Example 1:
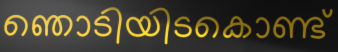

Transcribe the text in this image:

ഞൊടിയിടകൊണ്ട്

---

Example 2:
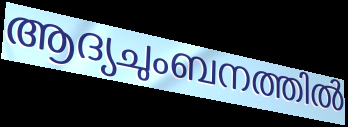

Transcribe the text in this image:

ആദ്യചുംബനത്തിൽ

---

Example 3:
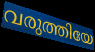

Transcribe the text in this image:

വരുത്തിയേ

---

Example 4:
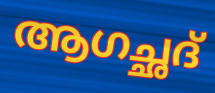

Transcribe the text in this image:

ആഗച്ഛദ്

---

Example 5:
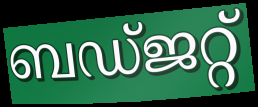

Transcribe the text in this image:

ബഡ്ജറ്റ്